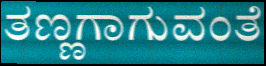
ತಣ್ಣಗಾಗುವಂತೆ